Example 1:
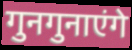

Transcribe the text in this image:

गुनगुनाएंगे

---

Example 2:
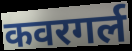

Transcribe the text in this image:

कवरगर्ल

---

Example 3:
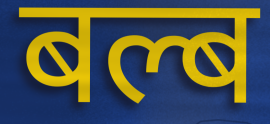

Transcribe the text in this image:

बल्ब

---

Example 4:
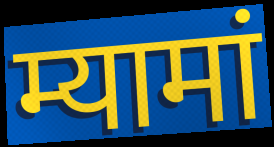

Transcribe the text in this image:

म्यामां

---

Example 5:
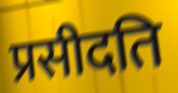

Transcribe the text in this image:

प्रसीदति